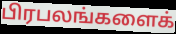
பிரபலங்களைக்